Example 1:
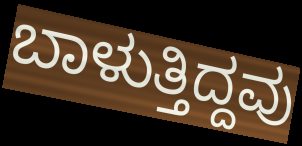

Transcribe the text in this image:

ಬಾಳುತ್ತಿದ್ದವು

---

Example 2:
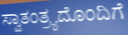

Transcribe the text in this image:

ಸ್ವಾತಂತ್ರ್ಯದೊಂದಿಗೆ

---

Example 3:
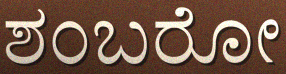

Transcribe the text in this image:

ಶಂಬರೋ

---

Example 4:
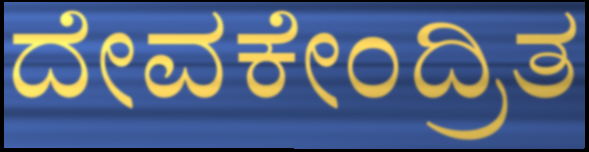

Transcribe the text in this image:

ದೇವಕೇಂದ್ರಿತ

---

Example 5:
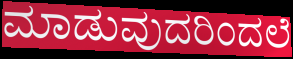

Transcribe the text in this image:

ಮಾಡುವುದರಿಂದಲೆ